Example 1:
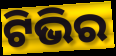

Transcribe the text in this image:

ଟିଭିର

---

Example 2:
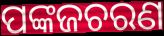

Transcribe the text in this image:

ପଙ୍କଜଚରଣ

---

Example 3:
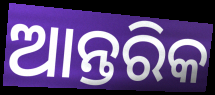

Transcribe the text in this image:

ଆନ୍ତରିକ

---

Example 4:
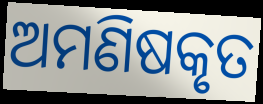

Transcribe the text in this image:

ଅମଣିଷକୃତ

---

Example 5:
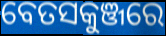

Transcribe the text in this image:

ବେତସକୁଞ୍ଜରେ